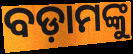
ବଡ଼ାମଙ୍କୁ